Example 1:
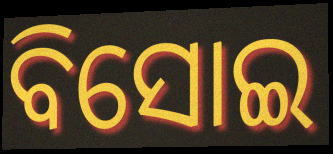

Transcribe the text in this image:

ବିସୋଇ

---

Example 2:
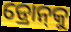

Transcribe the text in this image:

ଡ୍ରୋନ୍‌କୁ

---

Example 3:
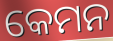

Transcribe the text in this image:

କେମନ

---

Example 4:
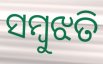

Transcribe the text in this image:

ସମ୍ବୁଝତି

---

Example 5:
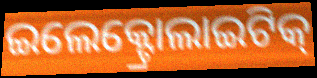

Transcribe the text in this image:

ଇଲେକ୍ଟ୍ରୋଲାଇଟିକ୍